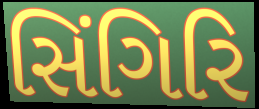
સિંગિરિ